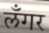
लँगर